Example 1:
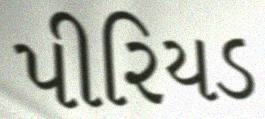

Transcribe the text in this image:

પીરિયડ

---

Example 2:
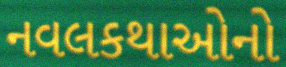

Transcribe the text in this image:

નવલકથાઓનો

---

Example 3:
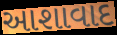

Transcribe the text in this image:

આશાવાદ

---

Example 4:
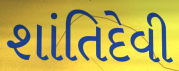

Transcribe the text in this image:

શાંતિદેવી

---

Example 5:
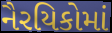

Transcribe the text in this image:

નૈરયિકોમાં